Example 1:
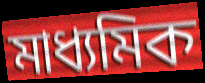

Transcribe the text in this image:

মাধ্যমিক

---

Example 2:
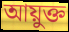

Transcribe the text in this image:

আয়ুক্ত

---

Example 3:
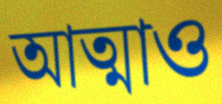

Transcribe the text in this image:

আত্মাও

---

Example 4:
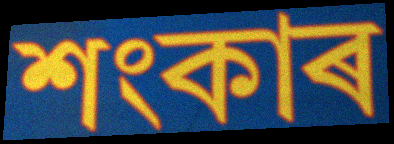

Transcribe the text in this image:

শংকাৰ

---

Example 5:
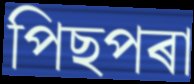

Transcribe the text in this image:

পিছপৰা